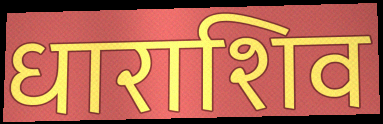
धाराशिव